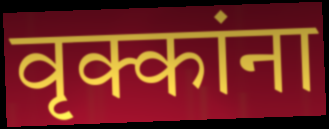
वृक्कांना